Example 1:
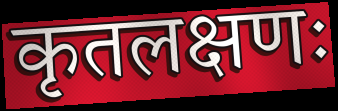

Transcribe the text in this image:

कृतलक्षणः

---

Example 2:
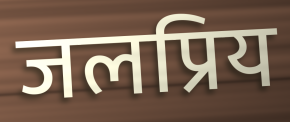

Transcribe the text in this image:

जलप्रिय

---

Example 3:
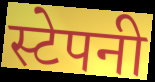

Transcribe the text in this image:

स्टेपनी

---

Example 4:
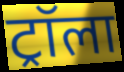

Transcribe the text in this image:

ट्रॉला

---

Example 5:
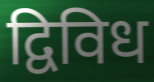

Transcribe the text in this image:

द्विविध